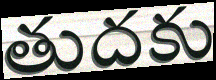
తుదకు